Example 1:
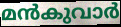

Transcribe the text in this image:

മൻകുവാർ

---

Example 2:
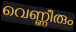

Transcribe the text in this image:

വെണ്ണീരും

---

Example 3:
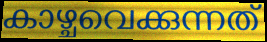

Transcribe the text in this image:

കാഴ്ചവെക്കുന്നത്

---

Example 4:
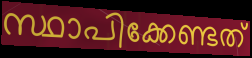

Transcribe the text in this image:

സ്ഥാപിക്കേണ്ടത്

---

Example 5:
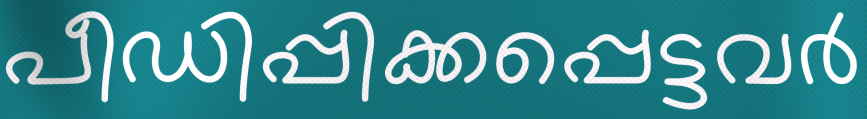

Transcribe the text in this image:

പീഡിപ്പിക്കപ്പെട്ടവർ